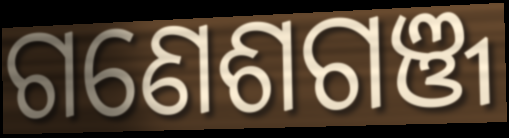
ଗଣେଶଗଞ୍ଜ